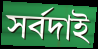
সর্বদাই